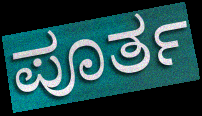
ಪೂರ್ತ